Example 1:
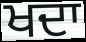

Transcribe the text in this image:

ਖਦਾ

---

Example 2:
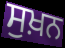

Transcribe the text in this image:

ਸੁਖ਼ਨ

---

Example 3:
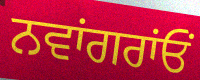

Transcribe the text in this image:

ਨਵਾਂਗਰਾਂਓਂ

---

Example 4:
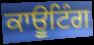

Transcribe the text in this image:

ਕਾਊਟਿੰਗ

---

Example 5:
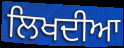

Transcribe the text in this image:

ਲਿਖਦੀਆ